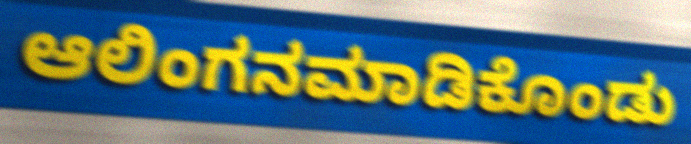
ಆಲಿಂಗನಮಾಡಿಕೊಂಡು